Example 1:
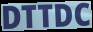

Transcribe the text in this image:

DTTDC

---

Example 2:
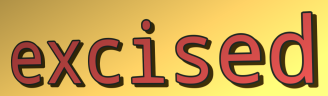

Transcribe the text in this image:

excised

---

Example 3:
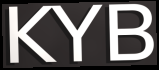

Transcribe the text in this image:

KYB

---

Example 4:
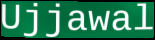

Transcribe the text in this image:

Ujjawal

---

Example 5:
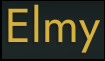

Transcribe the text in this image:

Elmy